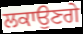
ਲਕਾਉਣਗੇ